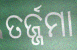
ତର୍ଜ୍ଜମା